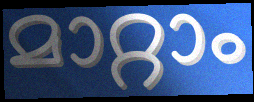
മാറ്റാം